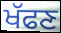
ਖੱਫਣ